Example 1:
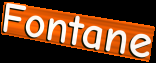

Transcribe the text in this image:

Fontane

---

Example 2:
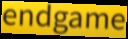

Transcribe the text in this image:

endgame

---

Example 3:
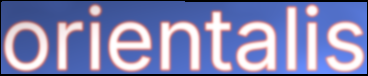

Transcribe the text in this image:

orientalis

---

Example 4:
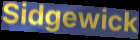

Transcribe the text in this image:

Sidgewick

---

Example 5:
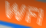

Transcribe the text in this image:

WFI